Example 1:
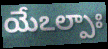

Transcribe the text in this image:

యేఽల్పాః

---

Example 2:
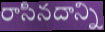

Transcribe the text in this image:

రాసినదాన్ని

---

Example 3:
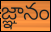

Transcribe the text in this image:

జ్ఞానం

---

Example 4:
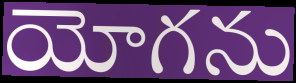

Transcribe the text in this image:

యోగను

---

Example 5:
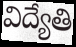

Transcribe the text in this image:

విద్యేతి